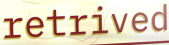
retrived